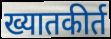
ख्यातकीर्त